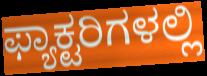
ಫ್ಯಾಕ್ಟರಿಗಳಲ್ಲಿ